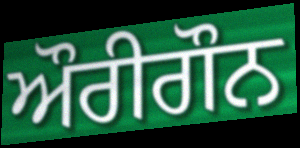
ਔਰੀਗੌਨ